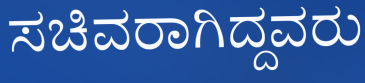
ಸಚಿವರಾಗಿದ್ದವರು